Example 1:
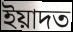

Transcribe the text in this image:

ইয়াদত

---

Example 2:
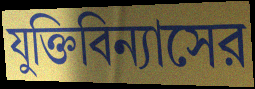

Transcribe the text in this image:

যুক্তিবিন্যাসের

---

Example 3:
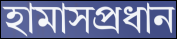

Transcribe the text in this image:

হামাসপ্রধান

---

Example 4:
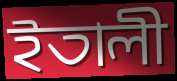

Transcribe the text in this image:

ইতালী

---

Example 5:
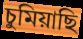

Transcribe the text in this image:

চুমিয়াছি